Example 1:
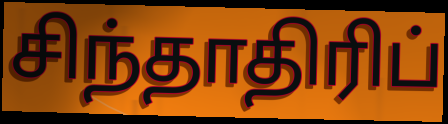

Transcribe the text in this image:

சிந்தாதிரிப்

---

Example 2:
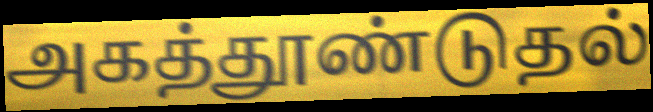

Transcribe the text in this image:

அகத்தூண்டுதல்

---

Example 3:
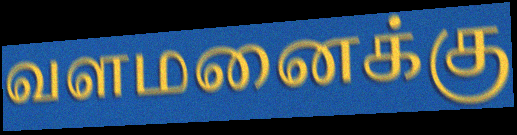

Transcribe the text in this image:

வளமனைக்கு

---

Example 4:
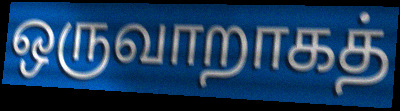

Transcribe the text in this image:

ஒருவாறாகத்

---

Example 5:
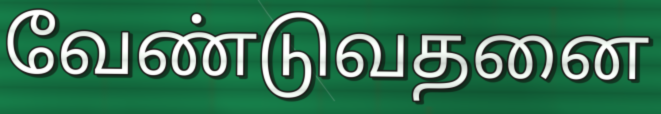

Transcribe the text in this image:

வேண்டுவதனை